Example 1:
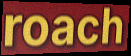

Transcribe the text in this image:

roach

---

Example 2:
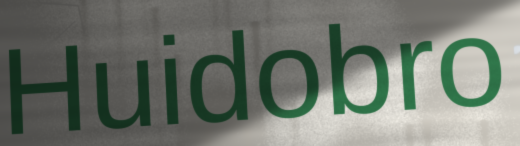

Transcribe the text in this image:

Huidobro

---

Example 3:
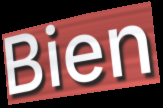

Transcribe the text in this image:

Bien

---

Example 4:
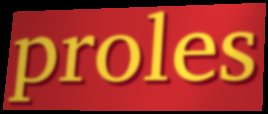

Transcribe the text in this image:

proles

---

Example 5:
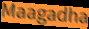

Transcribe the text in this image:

Maagadha